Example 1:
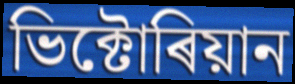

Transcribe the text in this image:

ভিক্টোৰিয়ান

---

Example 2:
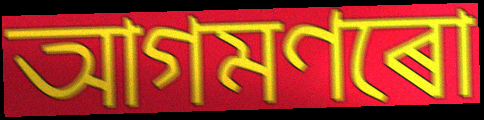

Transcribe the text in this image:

আগমণৰো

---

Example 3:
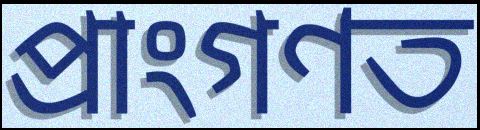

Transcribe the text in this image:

প্ৰাংগণত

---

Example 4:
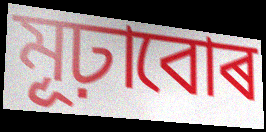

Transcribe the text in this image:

মূঢ়াবোৰ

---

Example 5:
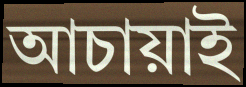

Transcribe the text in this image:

আচায়াই